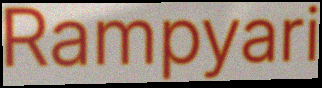
Rampyari